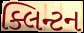
ક્લિન્ટન